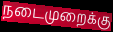
நடைமுறைக்கு